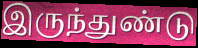
இருந்துண்டு